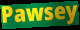
Pawsey